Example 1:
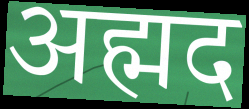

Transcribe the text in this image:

अह्मद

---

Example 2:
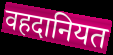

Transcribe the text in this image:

वहदानियत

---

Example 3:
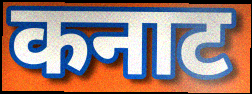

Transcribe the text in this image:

कनाट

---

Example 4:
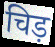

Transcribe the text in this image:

चिड़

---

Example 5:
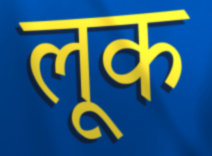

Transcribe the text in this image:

लूक